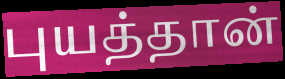
புயத்தான்